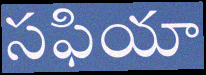
సఫియా